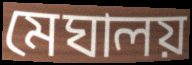
মেঘালয়